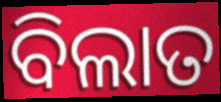
ବିଲାତ